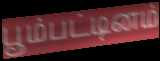
பூம்பட்டினம்